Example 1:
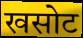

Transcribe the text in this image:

खसोट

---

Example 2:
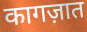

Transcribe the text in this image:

कागज़ात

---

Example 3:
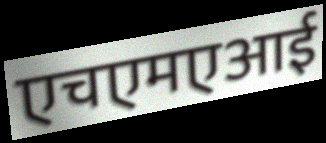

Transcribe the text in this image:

एचएमएआई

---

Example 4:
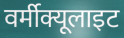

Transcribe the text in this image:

वर्मीक्यूलाइट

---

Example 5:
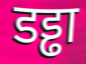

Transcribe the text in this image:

डड्ढा